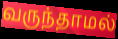
வருந்தாமல்